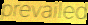
prevailed